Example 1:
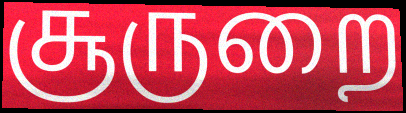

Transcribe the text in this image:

சூருறை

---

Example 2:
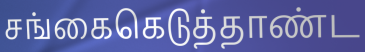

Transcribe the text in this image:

சங்கைகெடுத்தாண்ட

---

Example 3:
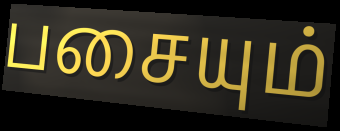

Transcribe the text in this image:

பசையும்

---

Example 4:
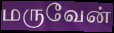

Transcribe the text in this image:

மருவேன்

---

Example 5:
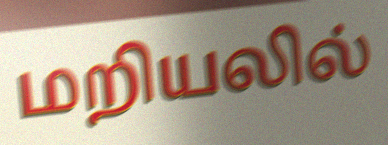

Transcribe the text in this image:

மறியலில்